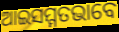
ଆଇସମ୍ମତଭାବେ